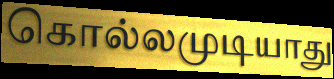
கொல்லமுடியாது